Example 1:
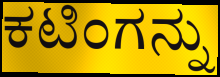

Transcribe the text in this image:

ಕಟಿಂಗನ್ನು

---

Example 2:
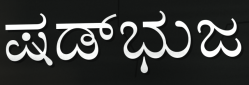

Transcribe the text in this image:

ಷಡ್‌ಭುಜ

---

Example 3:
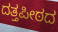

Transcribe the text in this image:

ದತ್ತಪೀಠದ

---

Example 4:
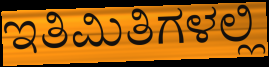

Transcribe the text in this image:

ಇತಿಮಿತಿಗಳಲ್ಲಿ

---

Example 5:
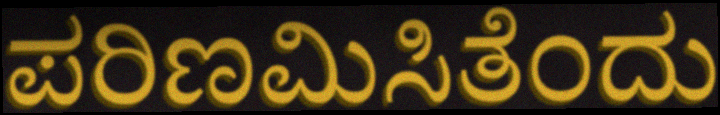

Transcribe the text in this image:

ಪರಿಣಮಿಸಿತೆಂದು